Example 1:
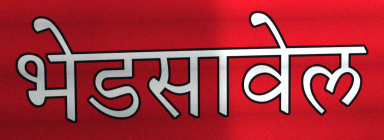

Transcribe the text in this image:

भेडसावेल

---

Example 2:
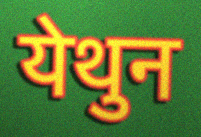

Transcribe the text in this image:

येथुन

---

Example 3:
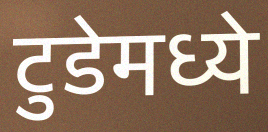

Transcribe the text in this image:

टुडेमध्ये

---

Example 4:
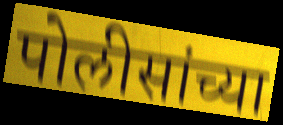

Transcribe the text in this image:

पोलीसांच्या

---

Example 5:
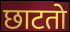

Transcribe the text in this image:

छाटतो